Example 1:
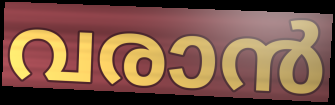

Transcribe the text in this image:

വരാൻ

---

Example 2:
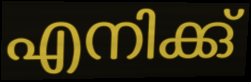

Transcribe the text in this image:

എനിക്കു്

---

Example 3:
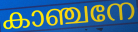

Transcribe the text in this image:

കാഞ്ചനേ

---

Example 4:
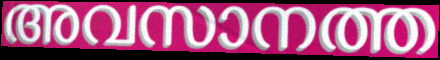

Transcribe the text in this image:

അവസാനത്ത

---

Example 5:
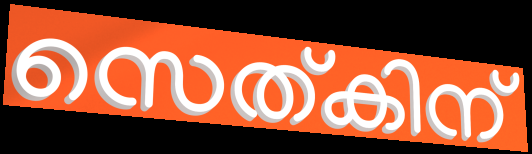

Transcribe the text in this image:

സെത്കിന്